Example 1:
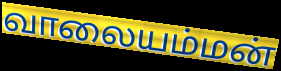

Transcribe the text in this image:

வாலையம்மன்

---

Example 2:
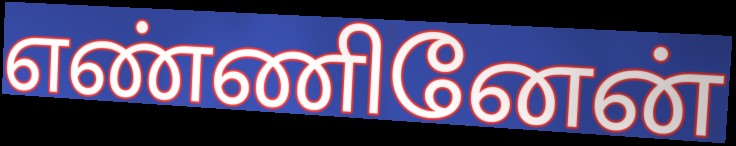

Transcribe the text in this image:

எண்ணினேன்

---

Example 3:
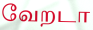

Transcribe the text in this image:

வேறடா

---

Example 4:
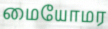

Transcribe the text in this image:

மையோமர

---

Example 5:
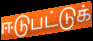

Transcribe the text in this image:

ஈடுபட்டுக்